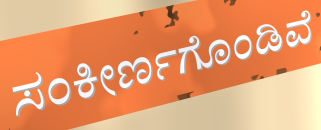
ಸಂಕೀರ್ಣಗೊಂಡಿವೆ